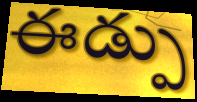
ఈడ్పు